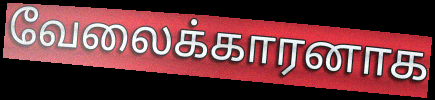
வேலைக்காரனாக